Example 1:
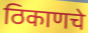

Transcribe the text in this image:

ठिकाणचे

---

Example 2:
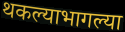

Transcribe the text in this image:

थकल्याभागल्या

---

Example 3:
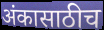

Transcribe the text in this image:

अंकासाठीच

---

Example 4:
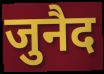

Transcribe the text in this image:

जुनैद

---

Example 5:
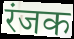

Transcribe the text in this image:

रंजक